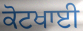
ਕੋਟਖਾਈ